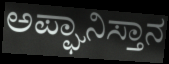
ಅಪ್ಘಾನಿಸ್ತಾನ